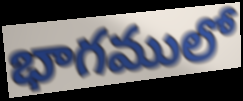
భాగములో